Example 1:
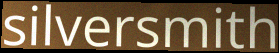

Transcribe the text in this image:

silversmith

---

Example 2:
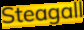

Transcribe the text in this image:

Steagall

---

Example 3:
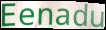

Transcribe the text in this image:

Eenadu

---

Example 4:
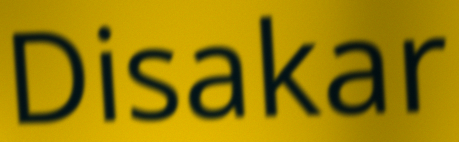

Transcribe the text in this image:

Disakar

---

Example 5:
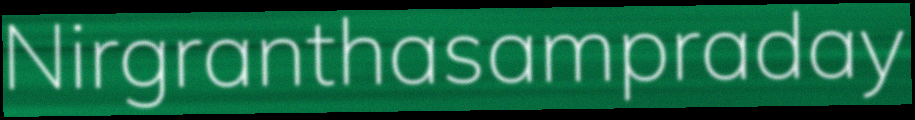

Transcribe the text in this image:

Nirgranthasampraday